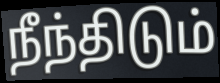
நீந்திடும்